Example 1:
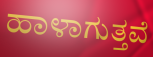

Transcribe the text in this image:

ಹಾಳಾಗುತ್ತವೆ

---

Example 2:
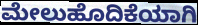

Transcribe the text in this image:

ಮೇಲುಹೊದಿಕೆಯಾಗಿ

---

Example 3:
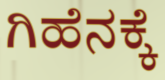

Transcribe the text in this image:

ಗಿಹೆನಕ್ಕೆ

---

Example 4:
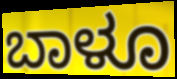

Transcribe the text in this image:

ಬಾಳೂ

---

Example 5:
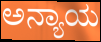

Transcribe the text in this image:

ಅನ್ಯಾಯ